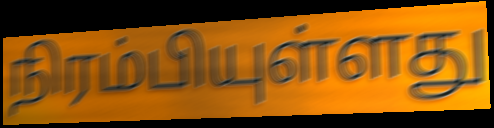
நிரம்பியுள்ளது